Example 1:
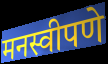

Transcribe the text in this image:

मनस्वीपणे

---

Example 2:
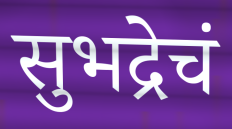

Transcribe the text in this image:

सुभद्रेचं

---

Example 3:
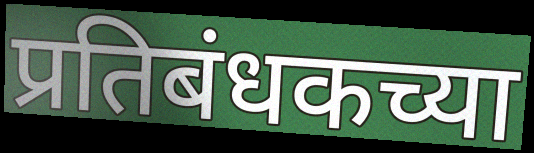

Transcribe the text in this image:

प्रतिबंधकच्या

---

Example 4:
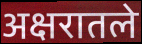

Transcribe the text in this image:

अक्षरातले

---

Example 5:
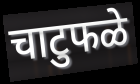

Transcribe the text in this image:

चाटुफळे